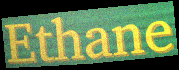
Ethane